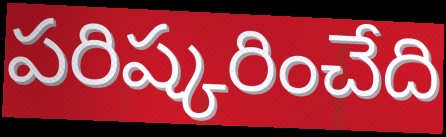
పరిష్కరించేది